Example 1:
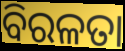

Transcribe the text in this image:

ବିରଳତା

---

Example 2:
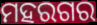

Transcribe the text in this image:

ମହରଗର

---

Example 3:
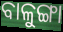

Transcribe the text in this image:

ବାଳୁଙ୍ଗା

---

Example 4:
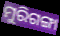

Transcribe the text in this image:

ମୁରିଗଙ୍ଗା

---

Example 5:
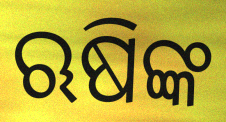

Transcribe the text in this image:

ଋଷିଙ୍କ